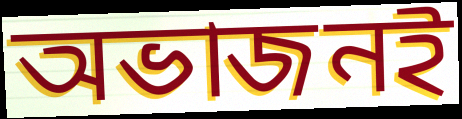
অভাজনই